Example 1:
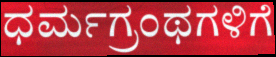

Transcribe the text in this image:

ಧರ್ಮಗ್ರಂಥಗಳಿಗೆ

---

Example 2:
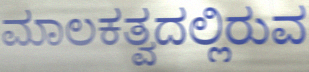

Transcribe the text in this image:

ಮಾಲಕತ್ವದಲ್ಲಿರುವ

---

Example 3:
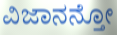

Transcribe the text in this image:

ವಿಜಾನನ್ತೋ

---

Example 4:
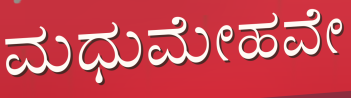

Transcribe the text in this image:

ಮಧುಮೇಹವೇ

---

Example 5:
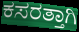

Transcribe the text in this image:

ಕಸರತ್ತಾಗಿ